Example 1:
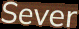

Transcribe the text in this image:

Sever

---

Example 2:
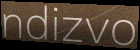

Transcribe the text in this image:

ndizvo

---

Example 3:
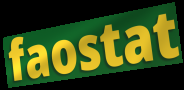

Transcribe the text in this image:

faostat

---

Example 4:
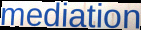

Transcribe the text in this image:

mediation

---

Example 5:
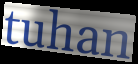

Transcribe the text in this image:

tuhan